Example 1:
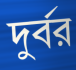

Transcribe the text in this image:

দুর্বর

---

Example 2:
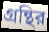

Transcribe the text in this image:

গ্রন্থির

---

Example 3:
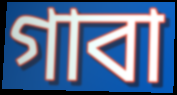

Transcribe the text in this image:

গাবা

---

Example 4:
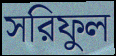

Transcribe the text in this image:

সরিফুল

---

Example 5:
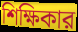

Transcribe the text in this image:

শিক্ষিকার